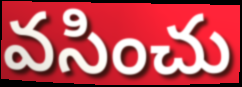
వసించు